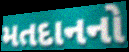
મતદાનનો